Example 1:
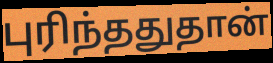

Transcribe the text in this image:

புரிந்ததுதான்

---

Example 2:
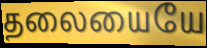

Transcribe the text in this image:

தலையையே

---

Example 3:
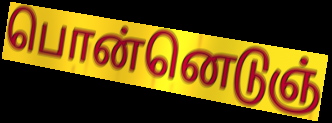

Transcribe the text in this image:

பொன்னெடுஞ்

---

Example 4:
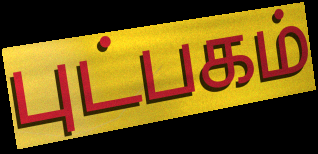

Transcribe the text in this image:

புட்பகம்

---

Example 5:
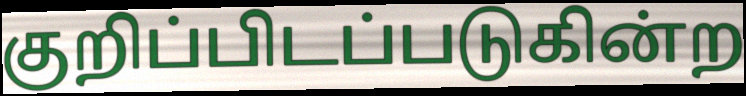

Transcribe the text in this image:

குறிப்பிடப்படுகின்ற